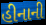
હીનાની